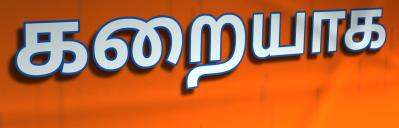
கறையாக